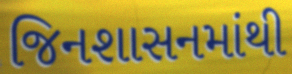
જિનશાસનમાંથી